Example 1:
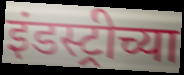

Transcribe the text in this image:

इंडस्ट्रीच्या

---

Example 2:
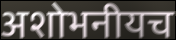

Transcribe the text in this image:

अशोभनीयच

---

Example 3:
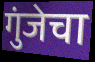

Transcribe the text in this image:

गुंजेचा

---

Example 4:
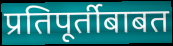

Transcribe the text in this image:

प्रतिपूर्तीबाबत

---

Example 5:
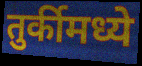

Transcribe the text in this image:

तुर्कीमध्ये